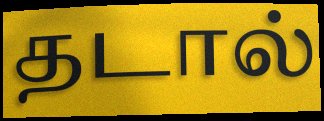
தடால்